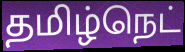
தமிழ்நெட்